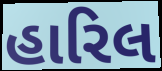
હારિલ